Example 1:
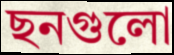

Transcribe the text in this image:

ছনগুলো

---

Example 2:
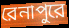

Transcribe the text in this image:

রেনাপুরে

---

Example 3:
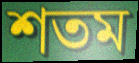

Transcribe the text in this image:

শতম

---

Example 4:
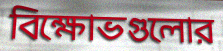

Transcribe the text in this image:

বিক্ষোভগুলোর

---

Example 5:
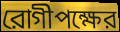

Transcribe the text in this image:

রোগীপক্ষের